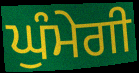
ਘੁੰਮੇਗੀ